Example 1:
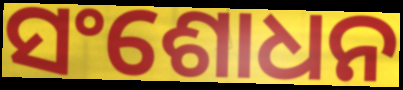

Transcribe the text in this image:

ସଂଶୋଧନ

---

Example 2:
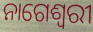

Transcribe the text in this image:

ନାଗେଶ୍ୱରୀ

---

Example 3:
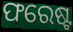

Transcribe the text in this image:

ଫରେଷ୍ଟ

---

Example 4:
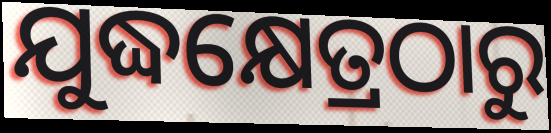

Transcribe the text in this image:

ଯୁଦ୍ଧକ୍ଷେତ୍ରଠାରୁ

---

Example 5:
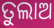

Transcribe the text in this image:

ତୁଲାଅ